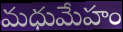
మధుమేహం